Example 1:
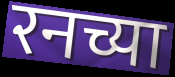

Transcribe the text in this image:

रनच्या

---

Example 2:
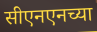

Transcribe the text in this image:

सीएनएनच्या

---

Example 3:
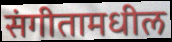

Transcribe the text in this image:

संगीतामधील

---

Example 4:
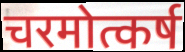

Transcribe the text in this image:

चरमोत्कर्ष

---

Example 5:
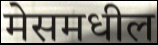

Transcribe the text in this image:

मेसमधील